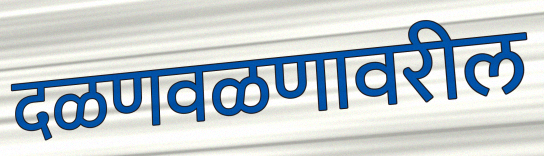
दळणवळणावरील